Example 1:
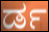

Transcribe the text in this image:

ರ್ಡ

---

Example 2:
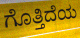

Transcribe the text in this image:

ಗೊತ್ತಿದೆಯ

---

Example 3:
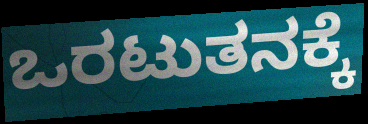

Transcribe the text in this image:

ಒರಟುತನಕ್ಕೆ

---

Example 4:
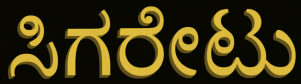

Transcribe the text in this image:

ಸಿಗರೇಟು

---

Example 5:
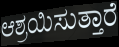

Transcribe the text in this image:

ಆಶ್ರಯಿಸುತ್ತಾರೆ